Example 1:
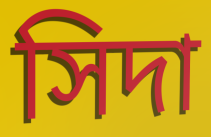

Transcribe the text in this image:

সিদা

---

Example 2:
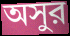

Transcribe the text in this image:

অসুর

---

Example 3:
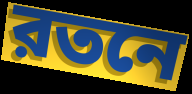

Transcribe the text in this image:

রতনে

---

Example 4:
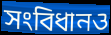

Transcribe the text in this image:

সংবিধানও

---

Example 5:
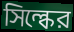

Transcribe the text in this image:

সিল্কের